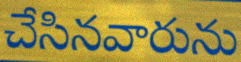
చేసినవారును